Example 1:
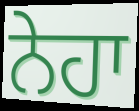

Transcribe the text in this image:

ਨੇਹਾ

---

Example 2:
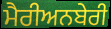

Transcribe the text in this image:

ਮੈਰੀਅਨਬੇਰੀ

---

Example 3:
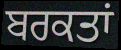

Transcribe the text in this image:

ਬਰਕਤਾਂ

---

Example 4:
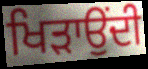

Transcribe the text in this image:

ਖਿੜਾਉਂਦੀ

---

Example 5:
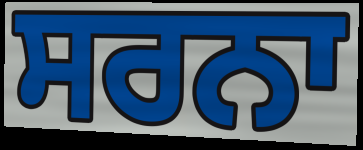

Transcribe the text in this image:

ਸਰਨਾ